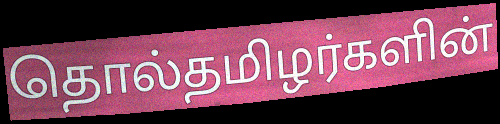
தொல்தமிழர்களின்